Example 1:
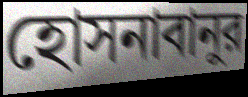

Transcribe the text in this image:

হোসনাবানুর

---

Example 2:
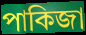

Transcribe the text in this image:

পাকিজা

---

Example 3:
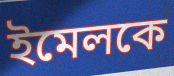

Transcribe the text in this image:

ইমেলকে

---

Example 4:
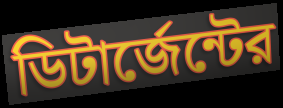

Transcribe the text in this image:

ডিটার্জেন্টের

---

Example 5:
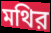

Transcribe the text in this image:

মথির